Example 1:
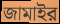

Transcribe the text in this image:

জামাইর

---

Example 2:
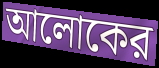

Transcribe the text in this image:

আলোকের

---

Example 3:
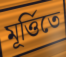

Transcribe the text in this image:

মূর্ত্তিতে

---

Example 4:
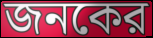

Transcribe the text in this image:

জনকের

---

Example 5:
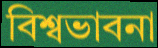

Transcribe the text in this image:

বিশ্বভাবনা